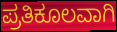
ಪ್ರತಿಕೂಲವಾಗಿ